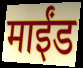
माईंड